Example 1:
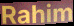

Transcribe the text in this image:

Rahim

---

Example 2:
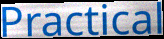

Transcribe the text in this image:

Practical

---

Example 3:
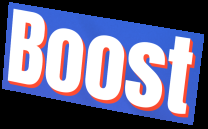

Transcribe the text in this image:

Boost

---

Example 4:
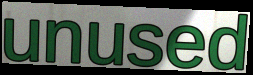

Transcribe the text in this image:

unused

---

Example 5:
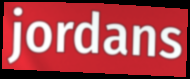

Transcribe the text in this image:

jordans